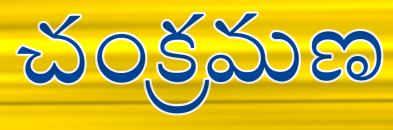
చంక్రమణ